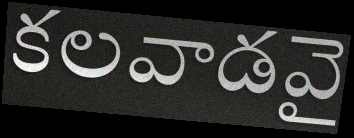
కలవాడవై